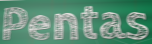
Pentas